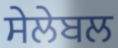
ਸੇਲੇਬਲ